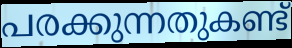
പരക്കുന്നതുകണ്ട്